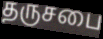
தருசபை